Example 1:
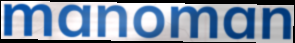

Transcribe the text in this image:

manoman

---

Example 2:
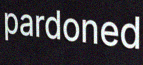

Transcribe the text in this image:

pardoned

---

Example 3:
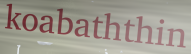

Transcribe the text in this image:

koabaththin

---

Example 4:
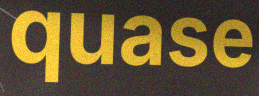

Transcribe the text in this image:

quase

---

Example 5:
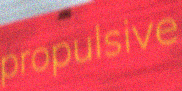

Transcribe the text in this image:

propulsive